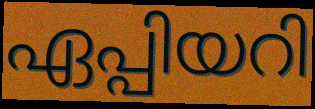
ഏപ്പിയറി